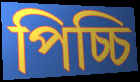
পিচ্চি